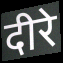
दीरे